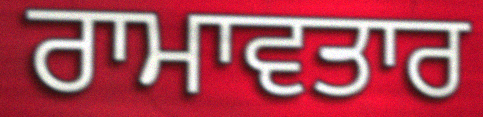
ਰਾਮਾਵਤਾਰ